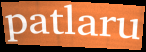
patlaru